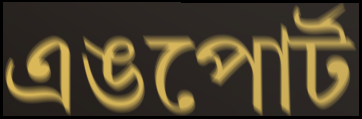
এঙপোর্ট